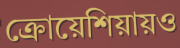
ক্রোয়েশিয়ায়ও